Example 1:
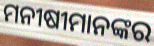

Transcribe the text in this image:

ମନୀଷୀମାନଙ୍କର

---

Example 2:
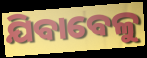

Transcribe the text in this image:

ଯିବାବେଳୁ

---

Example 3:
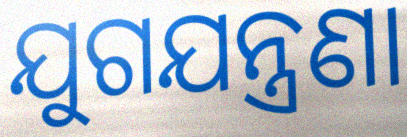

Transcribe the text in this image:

ଯୁଗଯନ୍ତ୍ରଣା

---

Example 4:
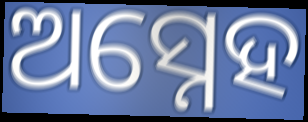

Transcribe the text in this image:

ଅସ୍ନେହ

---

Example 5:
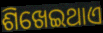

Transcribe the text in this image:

ଶିଖେଇଥାଏ